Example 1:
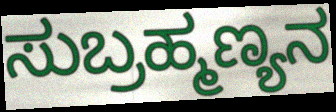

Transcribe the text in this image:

ಸುಬ್ರಹ್ಮಣ್ಯನ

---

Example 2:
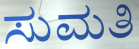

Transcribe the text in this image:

ಸುಮತಿ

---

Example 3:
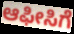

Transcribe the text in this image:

ಆಫೀಸಿಗೆ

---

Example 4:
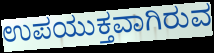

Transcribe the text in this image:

ಉಪಯುಕ್ತವಾಗಿರುವ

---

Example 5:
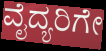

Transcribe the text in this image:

ವೈದ್ಯರಿಗೇ